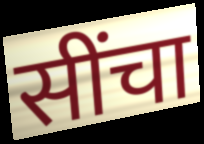
सींचा